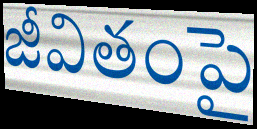
జీవితంపై